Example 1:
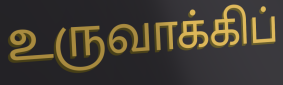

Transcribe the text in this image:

உருவாக்கிப்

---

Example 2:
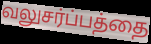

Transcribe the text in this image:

வலுசர்ப்பத்தை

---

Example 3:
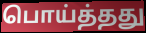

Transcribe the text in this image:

பொய்த்தது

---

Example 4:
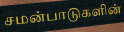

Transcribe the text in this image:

சமன்பாடுகளின்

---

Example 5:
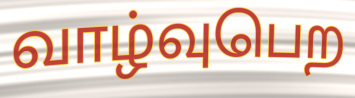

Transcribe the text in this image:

வாழ்வுபெற